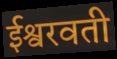
ईश्वरवती